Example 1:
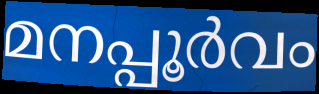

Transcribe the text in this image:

മനപ്പൂർവം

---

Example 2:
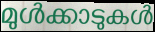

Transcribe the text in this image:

മുൾക്കാടുകൾ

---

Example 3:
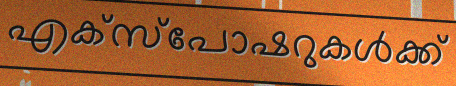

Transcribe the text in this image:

എക്സ്പോഷറുകൾക്ക്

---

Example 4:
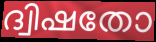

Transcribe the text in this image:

ദ്വിഷതോ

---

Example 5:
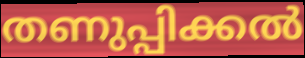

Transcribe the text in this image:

തണുപ്പിക്കൽ